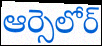
ఆర్సెలోర్